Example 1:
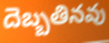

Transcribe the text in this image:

దెబ్బతినవు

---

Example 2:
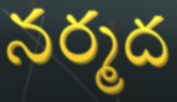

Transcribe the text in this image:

నర్మద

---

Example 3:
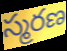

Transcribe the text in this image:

స్మరణ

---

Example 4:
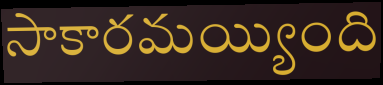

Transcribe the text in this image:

సాకారమయ్యింది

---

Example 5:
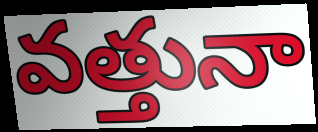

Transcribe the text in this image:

వత్తునా